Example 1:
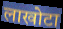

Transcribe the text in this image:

लाखोटा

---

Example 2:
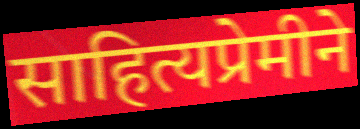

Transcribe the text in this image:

साहित्यप्रेमीने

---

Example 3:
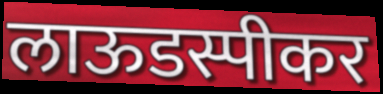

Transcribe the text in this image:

लाऊडस्पीकर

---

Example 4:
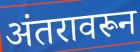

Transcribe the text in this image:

अंतरावरून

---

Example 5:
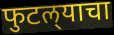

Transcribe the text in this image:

फुटल्याचा